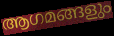
ആഗമങ്ങളും